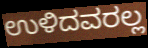
ಉಳಿದವರಲ್ಲ